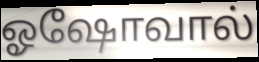
ஓஷோவால்